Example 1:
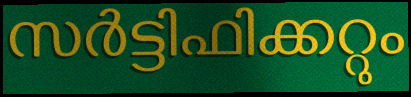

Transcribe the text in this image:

സർട്ടിഫിക്കറ്റും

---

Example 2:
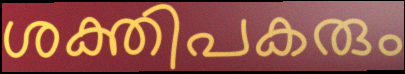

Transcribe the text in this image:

ശക്തിപകരും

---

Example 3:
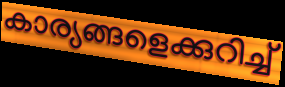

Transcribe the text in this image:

കാര്യങ്ങളെക്കുറിച്ച്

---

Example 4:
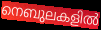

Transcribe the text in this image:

നെബുലകളിൽ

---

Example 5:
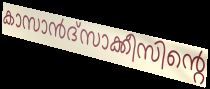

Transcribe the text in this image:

കാസാൻദ്സാക്കീസിന്റെ